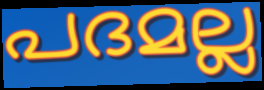
പദമല്ല